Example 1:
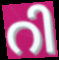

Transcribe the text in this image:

റി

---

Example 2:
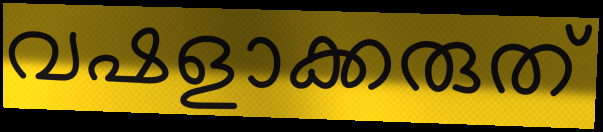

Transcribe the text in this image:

വഷളാക്കരുത്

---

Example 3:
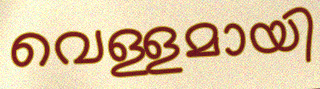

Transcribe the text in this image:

വെള്ളമായി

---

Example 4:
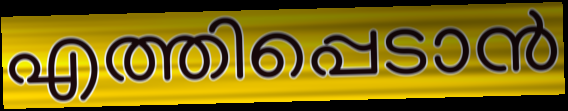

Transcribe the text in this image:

എത്തിപ്പെടാൻ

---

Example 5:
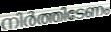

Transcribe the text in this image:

നിർത്തിടേണം